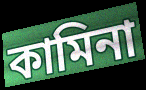
কামিনা